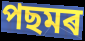
পছমৰ